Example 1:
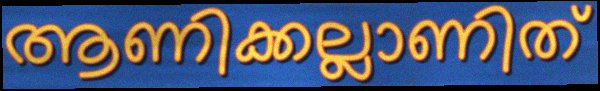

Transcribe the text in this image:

ആണിക്കല്ലാണിത്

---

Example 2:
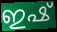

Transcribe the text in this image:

ഇഷ്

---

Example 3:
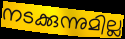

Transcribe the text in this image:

നടക്കുന്നുമില്ല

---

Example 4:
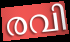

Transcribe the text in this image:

രവി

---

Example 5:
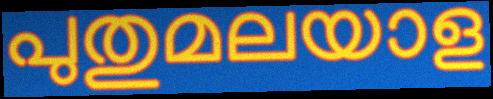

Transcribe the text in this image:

പുതുമലയാള